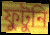
ফুটুনি